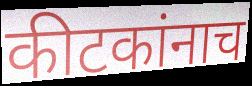
कीटकांनाच